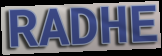
RADHE